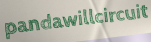
pandawillcircuit